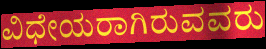
ವಿಧೇಯರಾಗಿರುವವರು